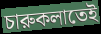
চারুকলাতেই